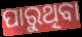
ପାରୁଥିବା